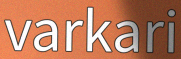
varkari